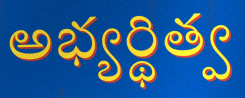
అభ్యర్థిత్వ